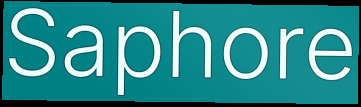
Saphore